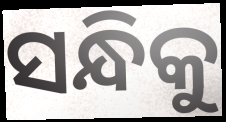
ସନ୍ଧିକୁ